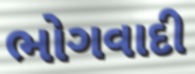
ભોગવાદી